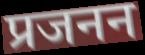
प्रजनन